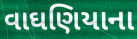
વાઘણિયાના